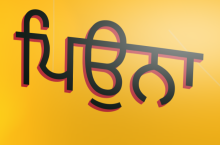
ਪਿਉਨਾ